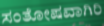
ಸಂತೋಷವಾಗಿರಿ